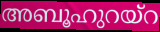
അബൂഹുറയ്റ